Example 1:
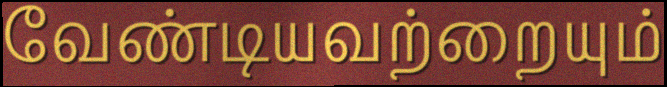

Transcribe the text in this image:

வேண்டியவற்றையும்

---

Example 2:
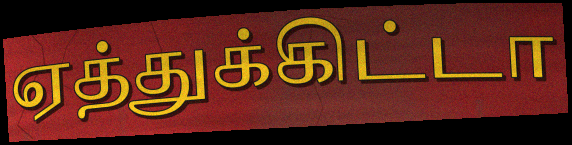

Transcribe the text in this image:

ஏத்துக்கிட்டா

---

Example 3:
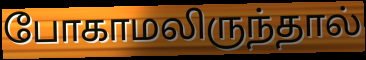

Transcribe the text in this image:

போகாமலிருந்தால்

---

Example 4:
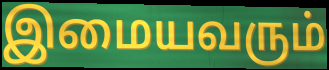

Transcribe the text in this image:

இமையவரும்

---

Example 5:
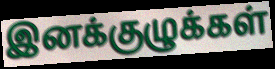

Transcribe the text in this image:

இனக்குழுக்கள்